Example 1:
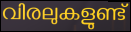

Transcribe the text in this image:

വിരലുകളുണ്ട്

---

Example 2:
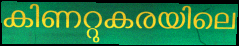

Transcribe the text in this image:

കിണറ്റുകരയിലെ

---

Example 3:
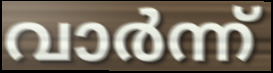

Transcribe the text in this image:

വാർന്ന്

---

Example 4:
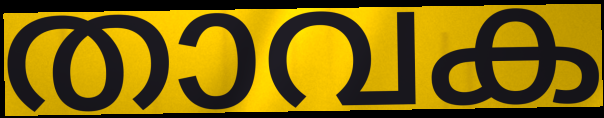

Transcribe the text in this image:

താവക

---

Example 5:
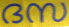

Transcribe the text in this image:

ദസ